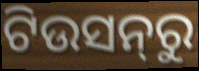
ଟିଉସନ୍‌ରୁ